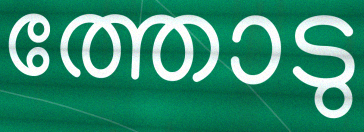
ത്തോടു